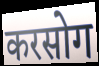
करसोग